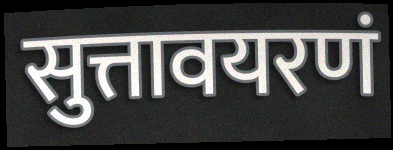
सुत्तावयरणं